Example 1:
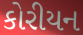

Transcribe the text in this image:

કોરીયન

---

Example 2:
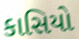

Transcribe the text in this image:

કાસિયો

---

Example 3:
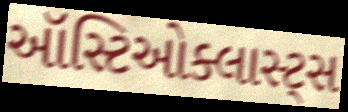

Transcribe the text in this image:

ઑસ્ટિઓક્લાસ્ટ્સ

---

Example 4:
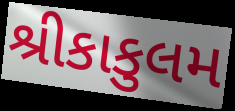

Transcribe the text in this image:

શ્રીકાકુલમ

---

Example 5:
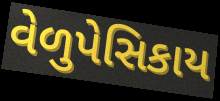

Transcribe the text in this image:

વેળુપેસિકાય